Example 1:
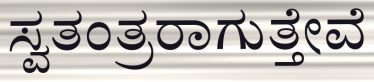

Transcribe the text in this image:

ಸ್ವತಂತ್ರರಾಗುತ್ತೇವೆ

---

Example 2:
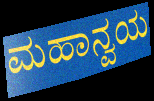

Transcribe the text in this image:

ಮಹಾನ್ವಯ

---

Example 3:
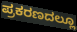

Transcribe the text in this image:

ಪ್ರಕರಣದಲ್ಲೂ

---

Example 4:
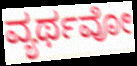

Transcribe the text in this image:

ವ್ಯರ್ಥವೋ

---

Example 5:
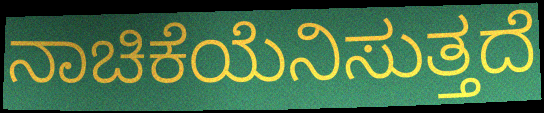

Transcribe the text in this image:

ನಾಚಿಕೆಯೆನಿಸುತ್ತದೆ